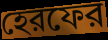
হেরফের